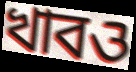
খাবও